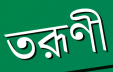
তরূণী